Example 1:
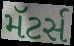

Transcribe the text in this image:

મૅટર્સ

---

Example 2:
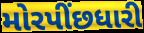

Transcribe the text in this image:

મોરપીંછધારી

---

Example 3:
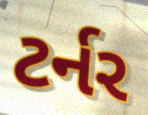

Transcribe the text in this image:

ટર્નર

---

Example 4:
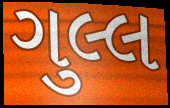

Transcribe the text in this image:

ગુલ્લ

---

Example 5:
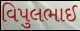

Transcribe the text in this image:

વિપુલભાઈ